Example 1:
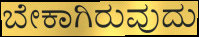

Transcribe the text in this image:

ಬೇಕಾಗಿರುವುದು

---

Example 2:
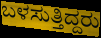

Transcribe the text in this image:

ಬಳಸುತ್ತಿದ್ದರು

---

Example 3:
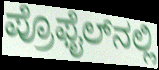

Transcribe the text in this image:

ಪ್ರೊಫೈಲ್‌ನಲ್ಲಿ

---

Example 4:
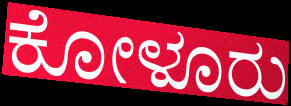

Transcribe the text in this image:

ಕೋಳೂರು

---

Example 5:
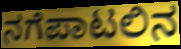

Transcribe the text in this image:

ನಗೆಪಾಟಲಿನ